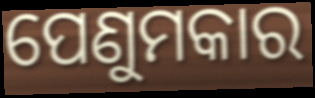
ପେଣୁମକାର